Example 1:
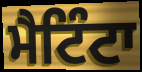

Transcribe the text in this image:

ਮੈਟਿੰਟਾ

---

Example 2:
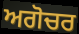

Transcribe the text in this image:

ਅਗੋਚਰ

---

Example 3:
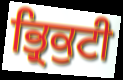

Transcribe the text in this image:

ਭ੍ਰਿਕੁਟੀ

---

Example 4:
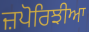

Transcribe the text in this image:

ਜ਼ਪੋਰਿਝੀਆ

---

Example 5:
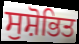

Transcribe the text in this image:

ਸੁਸ਼ੋਭਿਤ